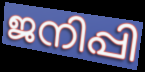
ജനിപ്പി